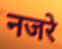
नजरे